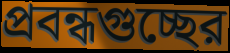
প্রবন্ধগুচ্ছের